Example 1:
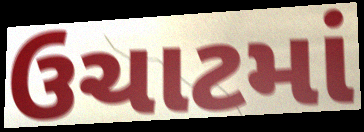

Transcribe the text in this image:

ઉચાટમાં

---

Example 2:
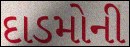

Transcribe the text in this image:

દાડમોની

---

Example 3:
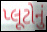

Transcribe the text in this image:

પ્લૂટોનું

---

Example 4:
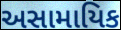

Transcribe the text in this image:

અસામાયિક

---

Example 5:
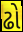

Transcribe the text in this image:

ઢો